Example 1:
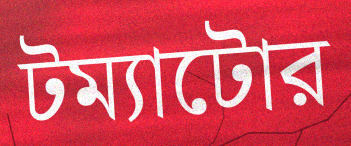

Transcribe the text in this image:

টম্যাটোর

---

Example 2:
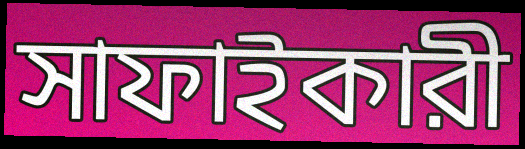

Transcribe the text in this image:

সাফাইকারী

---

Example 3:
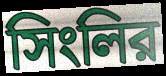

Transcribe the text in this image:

সিংলির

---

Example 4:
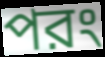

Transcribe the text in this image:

পরং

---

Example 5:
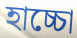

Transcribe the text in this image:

হাচ্চো